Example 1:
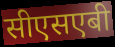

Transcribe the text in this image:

सीएसएबी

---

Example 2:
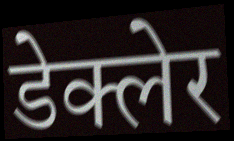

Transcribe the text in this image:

डेक्लेर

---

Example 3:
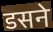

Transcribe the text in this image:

डसने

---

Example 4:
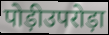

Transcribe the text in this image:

पोड़ीउपरोड़ा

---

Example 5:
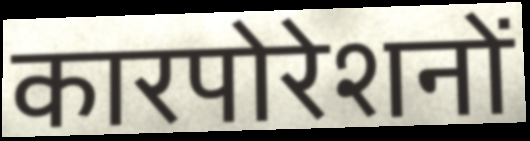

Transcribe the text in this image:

कारपोरेशनों